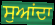
ਸੁਆਂਦਾ